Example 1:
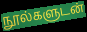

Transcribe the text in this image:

நூல்களுடன்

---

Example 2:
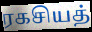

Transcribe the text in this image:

ரகசியத்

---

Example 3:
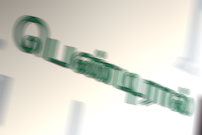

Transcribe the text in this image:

பெண்டிரால்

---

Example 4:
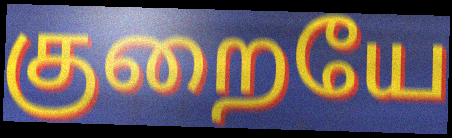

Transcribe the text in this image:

குறையே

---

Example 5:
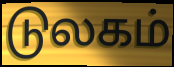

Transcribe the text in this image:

டுலகம்